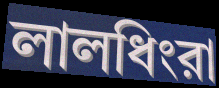
লালধিংরা